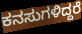
ಕನಸುಗಳಿದ್ದರೆ